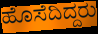
ಹೊಸೆದಿದ್ದರು